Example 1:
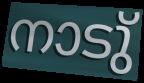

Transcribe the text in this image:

നാടു്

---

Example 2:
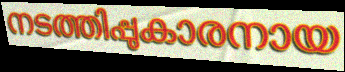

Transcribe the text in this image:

നടത്തിപ്പുകാരനായ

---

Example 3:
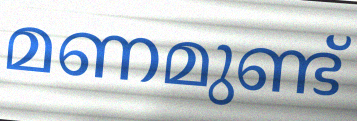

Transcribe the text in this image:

മണമുണ്ട്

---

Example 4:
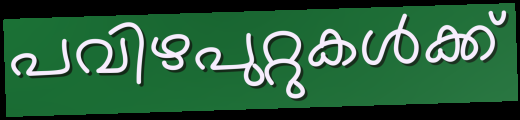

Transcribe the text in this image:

പവിഴപുറ്റുകൾക്ക്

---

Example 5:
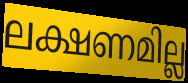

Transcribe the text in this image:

ലക്ഷണമില്ല